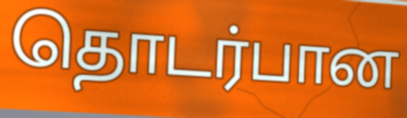
தொடர்பான